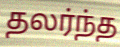
தலர்ந்த